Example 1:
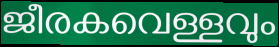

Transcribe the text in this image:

ജീരകവെള്ളവും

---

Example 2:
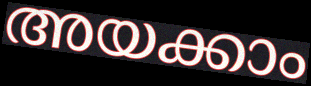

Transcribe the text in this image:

അയക്കാം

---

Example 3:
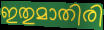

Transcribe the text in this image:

ഇതുമാതിരി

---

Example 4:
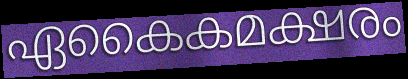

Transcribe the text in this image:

ഏകൈകമക്ഷരം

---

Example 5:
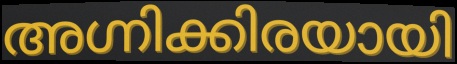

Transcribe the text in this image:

അഗ്നിക്കിരയായി